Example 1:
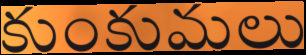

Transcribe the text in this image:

కుంకుమలు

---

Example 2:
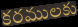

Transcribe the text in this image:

కరములకు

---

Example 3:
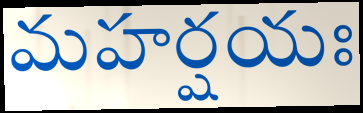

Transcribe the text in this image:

మహర్షయః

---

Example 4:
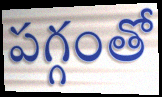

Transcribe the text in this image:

పగ్గంతో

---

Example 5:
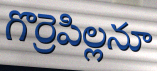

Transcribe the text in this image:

గొర్రెపిల్లనూ